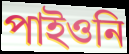
পাইওনি